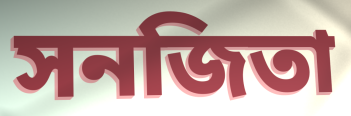
সনজিতা